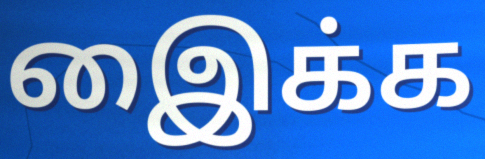
இைக்க